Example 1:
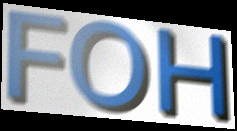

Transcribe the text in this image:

FOH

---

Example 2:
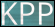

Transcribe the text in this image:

KPP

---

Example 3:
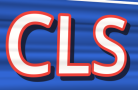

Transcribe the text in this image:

CLS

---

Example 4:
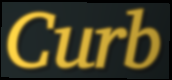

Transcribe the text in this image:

Curb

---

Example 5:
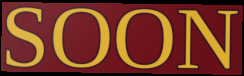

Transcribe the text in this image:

SOON